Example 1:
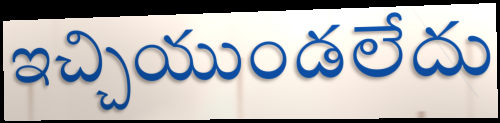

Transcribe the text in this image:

ఇచ్చియుండలేదు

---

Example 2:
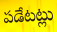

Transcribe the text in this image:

పడేటట్లు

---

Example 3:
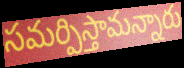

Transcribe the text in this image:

సమర్పిస్తామన్నారు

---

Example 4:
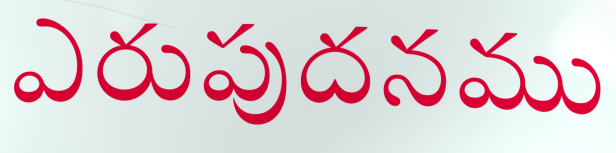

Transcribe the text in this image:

ఎరుపుదనము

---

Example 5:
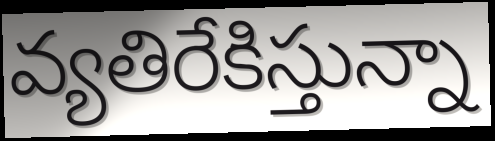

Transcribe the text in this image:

వ్యతిరేకిస్తున్నా